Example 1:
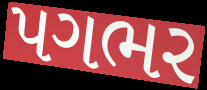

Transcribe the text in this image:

પગભર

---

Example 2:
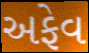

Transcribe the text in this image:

અફેવ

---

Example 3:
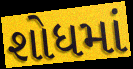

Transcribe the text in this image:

શોધમાં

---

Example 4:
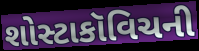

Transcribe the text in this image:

શોસ્ટાકૉવિચની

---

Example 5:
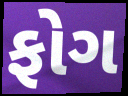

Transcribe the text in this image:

ફોગ